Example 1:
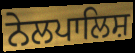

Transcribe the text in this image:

ਨੇਲਪਾਲਿਸ਼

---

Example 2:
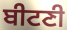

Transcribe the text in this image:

ਬੀਟਣੀ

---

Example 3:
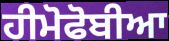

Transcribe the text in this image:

ਹੀਮੋਫੋਬੀਆ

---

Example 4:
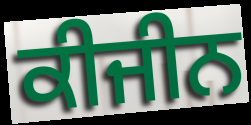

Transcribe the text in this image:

ਕੀਜੀਨ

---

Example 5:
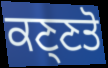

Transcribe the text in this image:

ਕਣ੍ਣਤੋ